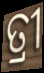
ତ୍ରୀ